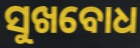
ସୁଖବୋଧ